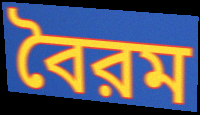
বৈরম